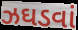
ઝઘડવાં